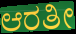
ಆರತೀ